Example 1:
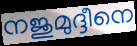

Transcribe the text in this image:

നജുമുദ്ദീനെ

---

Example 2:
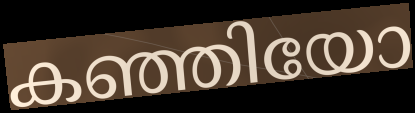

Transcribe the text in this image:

കഞ്ഞിയോ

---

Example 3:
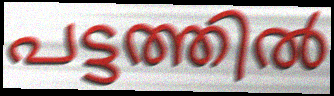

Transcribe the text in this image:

പട്ടത്തിൽ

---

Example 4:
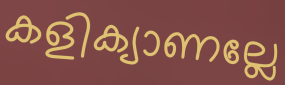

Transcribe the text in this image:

കളിക്യാണല്ലേ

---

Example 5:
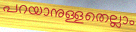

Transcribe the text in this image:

പറയാനുള്ളതെല്ലാം